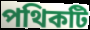
পথিকটি